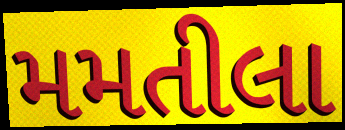
મમતીલા